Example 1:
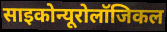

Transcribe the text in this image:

साइकोन्यूरोलॉजिकल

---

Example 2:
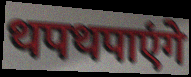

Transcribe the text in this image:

थपथपाएंगे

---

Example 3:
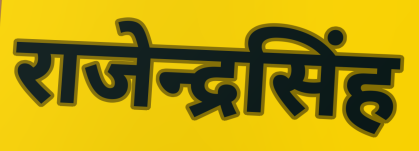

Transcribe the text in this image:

राजेन्द्रसिंह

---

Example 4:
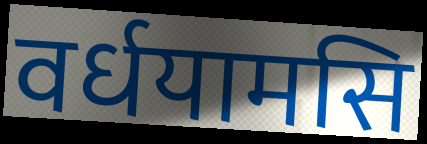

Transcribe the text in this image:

वर्धयामसि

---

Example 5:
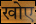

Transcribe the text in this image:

खोए